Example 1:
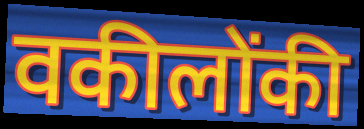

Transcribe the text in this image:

वकीलोंकी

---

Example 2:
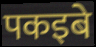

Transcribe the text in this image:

पकइबे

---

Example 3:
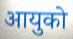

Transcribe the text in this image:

आयुको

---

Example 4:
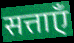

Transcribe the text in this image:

सत्ताएँ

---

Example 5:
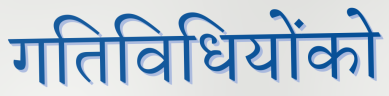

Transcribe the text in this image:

गतिविधियोंको